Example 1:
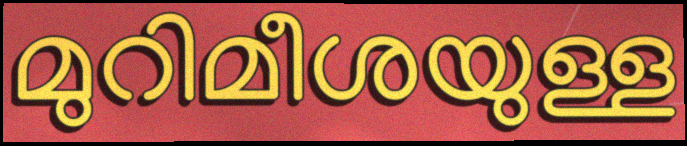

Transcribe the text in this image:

മുറിമീശയുള്ള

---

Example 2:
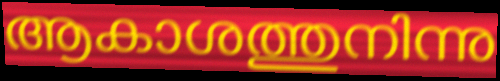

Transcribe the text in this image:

ആകാശത്തുനിന്നു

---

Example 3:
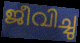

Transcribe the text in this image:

ജീവിച്ചു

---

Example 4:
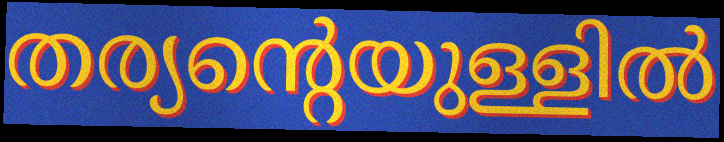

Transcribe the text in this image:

തര്യന്റെയുള്ളിൽ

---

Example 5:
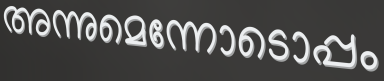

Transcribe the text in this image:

അന്നുമെന്നോടൊപ്പം